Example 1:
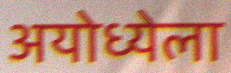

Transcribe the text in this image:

अयोध्येला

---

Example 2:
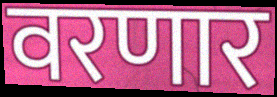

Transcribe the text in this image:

वरणार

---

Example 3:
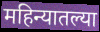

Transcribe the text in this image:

महिन्यातल्या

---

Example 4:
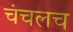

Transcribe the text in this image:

चंचलच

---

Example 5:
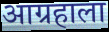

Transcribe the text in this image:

आग्रहाला